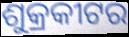
ଶୁକ୍ରକୀଟର